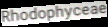
Rhodophyceae